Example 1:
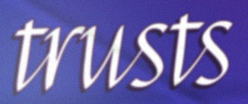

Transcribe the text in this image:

trusts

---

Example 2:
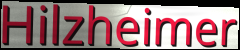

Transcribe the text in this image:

Hilzheimer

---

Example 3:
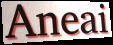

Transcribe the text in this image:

Aneai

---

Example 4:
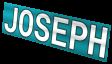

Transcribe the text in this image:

JOSEPH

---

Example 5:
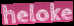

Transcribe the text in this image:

heloke